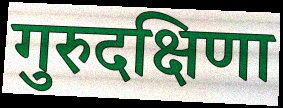
गुरुदक्षिणा